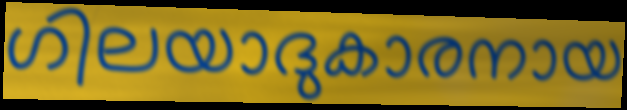
ഗിലയാദുകാരനായ